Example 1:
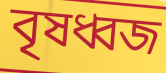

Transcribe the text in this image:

বৃষধ্বজ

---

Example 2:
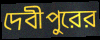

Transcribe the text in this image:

দেবীপুরের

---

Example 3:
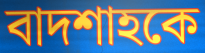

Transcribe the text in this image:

বাদশাহকে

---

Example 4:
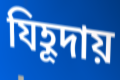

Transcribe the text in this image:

যিহূদায়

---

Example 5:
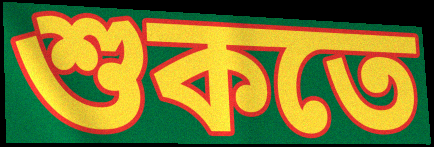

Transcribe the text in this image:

শুকতে